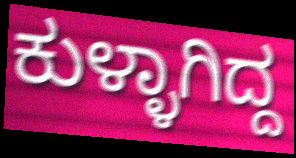
ಕುಳ್ಳಾಗಿದ್ದ